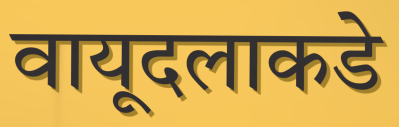
वायूदलाकडे